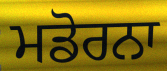
ਮਡੋਰਨਾ